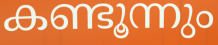
കണ്ടൂന്നും